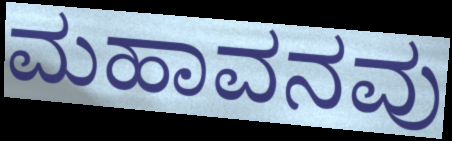
ಮಹಾವನವು